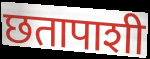
छतापाशी